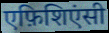
एफ़िशिएंसी